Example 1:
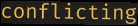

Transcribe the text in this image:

conflicting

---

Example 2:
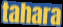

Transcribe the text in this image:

tahara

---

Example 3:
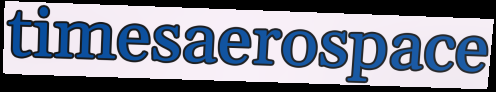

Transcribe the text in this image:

timesaerospace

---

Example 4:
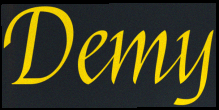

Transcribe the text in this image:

Demy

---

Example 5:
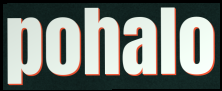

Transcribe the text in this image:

pohalo